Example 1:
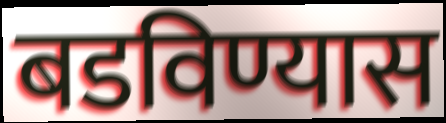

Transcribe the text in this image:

बडविण्यास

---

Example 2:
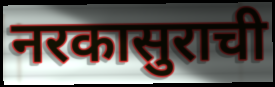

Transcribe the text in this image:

नरकासुराची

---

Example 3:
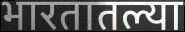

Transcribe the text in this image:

भारतातल्या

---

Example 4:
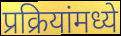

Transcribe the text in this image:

प्रक्रियांमध्ये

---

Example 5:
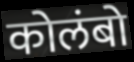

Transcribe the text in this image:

कोलंबो